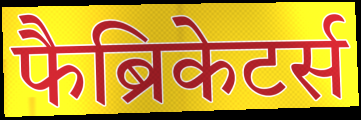
फैब्रिकेटर्स